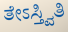
ತೇಽಸ್ತ್ವಿತಿ